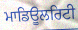
ਮਾਡਿਊਲਰਿਟੀ